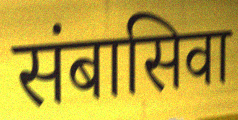
संबासिवा